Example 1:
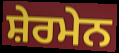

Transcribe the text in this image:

ਸ਼ੇਰਮੇਨ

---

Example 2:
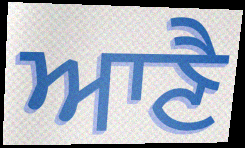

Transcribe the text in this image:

ਆਣੈ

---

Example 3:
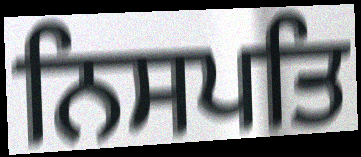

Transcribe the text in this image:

ਨਿਸਪਤਿ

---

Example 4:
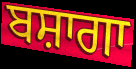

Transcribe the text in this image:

ਬਸ਼ਾਗਾ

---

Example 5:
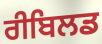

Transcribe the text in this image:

ਰੀਬਿਲਡ